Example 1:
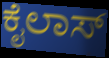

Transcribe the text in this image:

ಕೈಲಾಸ್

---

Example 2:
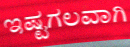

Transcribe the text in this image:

ಇಷ್ಟಗಲವಾಗಿ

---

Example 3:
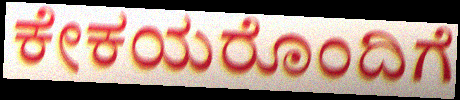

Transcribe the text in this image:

ಕೇಕಯರೊಂದಿಗೆ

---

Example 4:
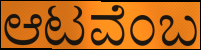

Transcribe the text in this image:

ಆಟವೆಂಬ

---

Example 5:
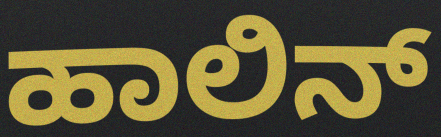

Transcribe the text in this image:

ಹಾಲಿನ್